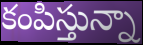
కంపిస్తున్నా